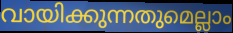
വായിക്കുന്നതുമെല്ലാം